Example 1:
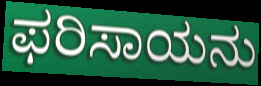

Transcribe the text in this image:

ಫರಿಸಾಯನು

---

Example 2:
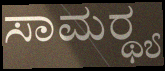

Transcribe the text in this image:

ಸಾಮರ್‍ಥ್ಯ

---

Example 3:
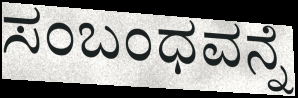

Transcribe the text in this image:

ಸಂಬಂಧವನ್ನೆ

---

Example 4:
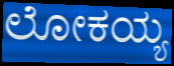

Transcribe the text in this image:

ಲೋಕಯ್ಯ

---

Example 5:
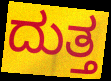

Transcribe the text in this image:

ದುತ್ತ